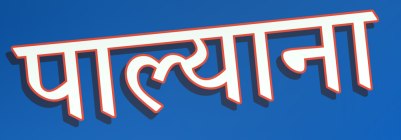
पाल्याना